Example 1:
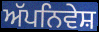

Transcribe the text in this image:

ਅੱਪਨਿਵੇਸ਼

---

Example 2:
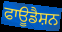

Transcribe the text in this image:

ਫਾਊਡੈਸ਼ਨ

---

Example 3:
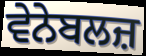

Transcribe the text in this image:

ਵੇਨੇਬਲਜ਼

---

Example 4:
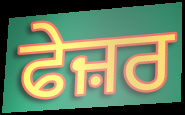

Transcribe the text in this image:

ਫੇਜ਼ਰ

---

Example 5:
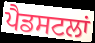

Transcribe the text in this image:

ਪੈਡਸਟਲਾਂ